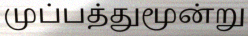
முப்பத்துமூன்று